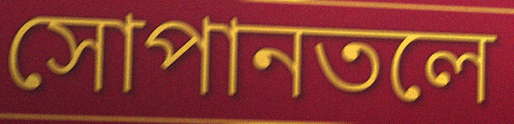
সোপানতলে